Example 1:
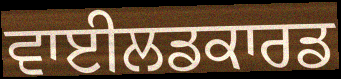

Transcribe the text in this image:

ਵਾਈਲਡਕਾਰਡ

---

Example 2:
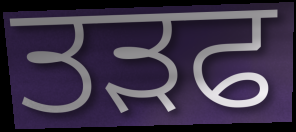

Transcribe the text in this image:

ਤੜਫ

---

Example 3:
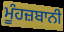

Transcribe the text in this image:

ਮੂੰਹਜ਼ਬਾਨੀ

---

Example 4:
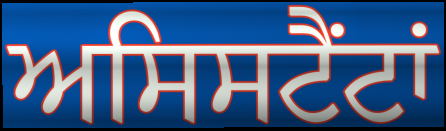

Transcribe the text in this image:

ਅਸਿਸਟੈਂਟਾਂ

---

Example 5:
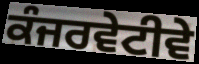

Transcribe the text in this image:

ਕੰਜਰਵੇਟੀਵੇ